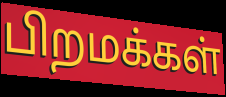
பிறமக்கள்